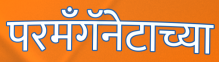
परमँगॅनेटाच्या